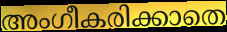
അംഗീകരിക്കാതെ